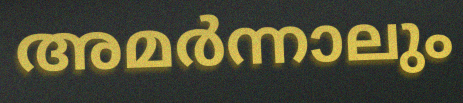
അമർന്നാലും